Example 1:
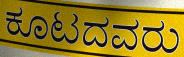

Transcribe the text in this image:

ಕೂಟದವರು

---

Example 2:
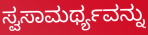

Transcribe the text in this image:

ಸ್ವಸಾಮರ್ಥ್ಯವನ್ನು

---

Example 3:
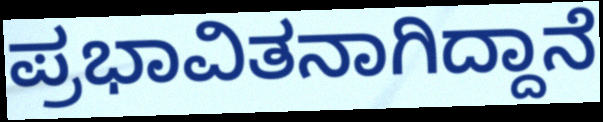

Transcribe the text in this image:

ಪ್ರಭಾವಿತನಾಗಿದ್ದಾನೆ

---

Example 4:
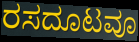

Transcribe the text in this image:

ರಸದೂಟವೂ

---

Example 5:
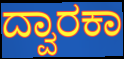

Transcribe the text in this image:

ದ್ವಾರಕಾ